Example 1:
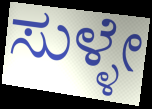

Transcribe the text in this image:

ಸುಳ್ಳೇ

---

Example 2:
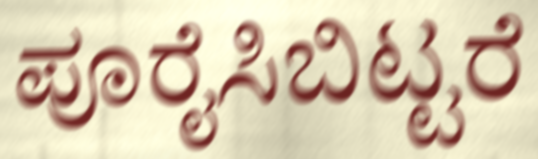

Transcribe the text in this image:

ಪೂರೈಸಿಬಿಟ್ಟರೆ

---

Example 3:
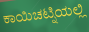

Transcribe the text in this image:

ಕಾಯಿಚಟ್ನಿಯಲ್ಲಿ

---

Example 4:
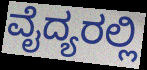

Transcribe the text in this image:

ವೈದ್ಯರಲ್ಲಿ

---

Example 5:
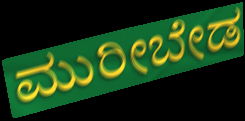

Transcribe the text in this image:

ಮುರೀಬೇಡ